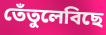
তেঁতুলেবিছে